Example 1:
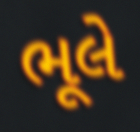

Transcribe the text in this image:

ભૂલે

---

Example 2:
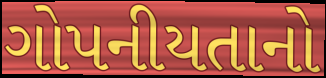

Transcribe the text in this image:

ગોપનીયતાનો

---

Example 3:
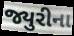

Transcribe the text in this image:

જ્યુરીના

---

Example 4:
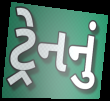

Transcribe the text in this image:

ટ્રેનનું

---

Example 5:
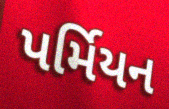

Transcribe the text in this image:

પર્મિયન